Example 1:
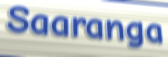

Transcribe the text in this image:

Saaranga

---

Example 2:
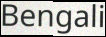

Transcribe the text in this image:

Bengali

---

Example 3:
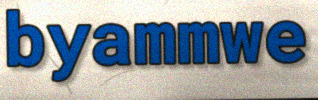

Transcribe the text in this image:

byammwe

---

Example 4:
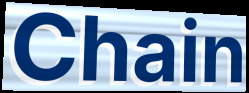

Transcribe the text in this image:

Chain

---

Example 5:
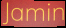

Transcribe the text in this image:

Jamin